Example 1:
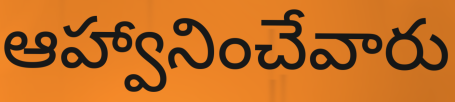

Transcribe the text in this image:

ఆహ్వానించేవారు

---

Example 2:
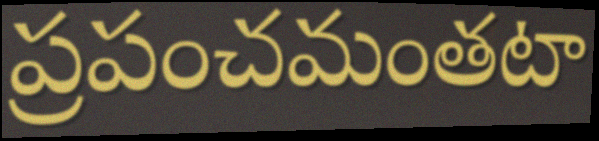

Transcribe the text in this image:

ప్రపంచమంతటా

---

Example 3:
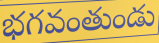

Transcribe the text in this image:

భగవంతుండు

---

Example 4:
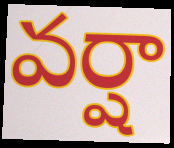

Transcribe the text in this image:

వర్షా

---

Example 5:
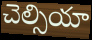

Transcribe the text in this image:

చెల్సియా